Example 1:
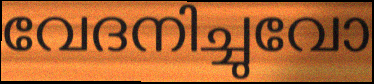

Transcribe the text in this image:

വേദനിച്ചുവോ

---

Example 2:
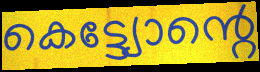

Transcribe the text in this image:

കെട്ട്യോന്റെ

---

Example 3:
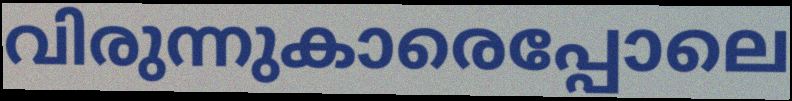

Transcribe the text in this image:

വിരുന്നുകാരെപ്പോലെ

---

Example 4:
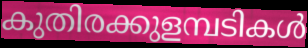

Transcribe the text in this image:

കുതിരക്കുളമ്പടികൾ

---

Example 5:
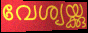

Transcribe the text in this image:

വേശ്യയ്ക്കു